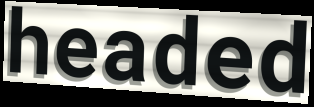
headed